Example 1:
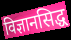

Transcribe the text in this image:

विज्ञानसिद्ध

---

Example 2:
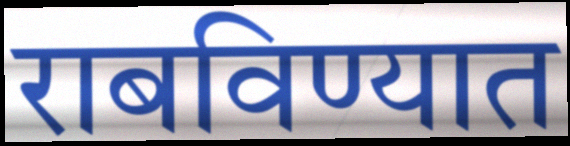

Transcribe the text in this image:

राबविण्‍यात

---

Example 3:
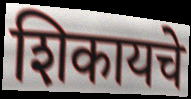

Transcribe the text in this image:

शिकायचे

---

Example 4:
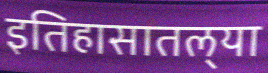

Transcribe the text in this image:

इतिहासातल्या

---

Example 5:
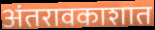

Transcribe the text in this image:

अंतरावकाशात